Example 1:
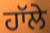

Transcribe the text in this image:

ਹਾੱਲੇ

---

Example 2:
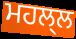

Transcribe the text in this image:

ਮਹਲ੍ਲ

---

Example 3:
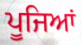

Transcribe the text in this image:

ਪੂਜਿਆਂ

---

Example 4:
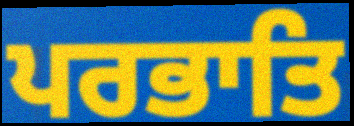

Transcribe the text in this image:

ਪਰਭਾਤਿ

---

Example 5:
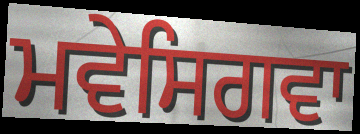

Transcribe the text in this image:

ਮਵੇਸਿਗਵਾ